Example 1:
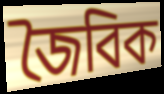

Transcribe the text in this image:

জৈবিক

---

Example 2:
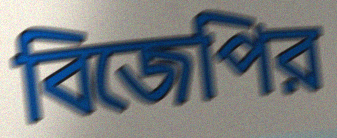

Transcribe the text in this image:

বিজেপির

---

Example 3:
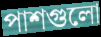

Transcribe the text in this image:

পাশগুলো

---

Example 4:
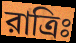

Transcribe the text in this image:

রাত্রিঃ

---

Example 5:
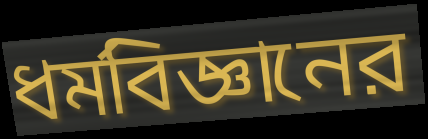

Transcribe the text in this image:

ধর্মবিজ্ঞানের